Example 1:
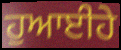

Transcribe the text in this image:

ਹੁਆਈਹੇ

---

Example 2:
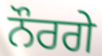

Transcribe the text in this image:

ਨੌਰਗੇ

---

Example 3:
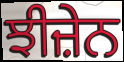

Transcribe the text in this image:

ਝੀਜ਼ੇਨ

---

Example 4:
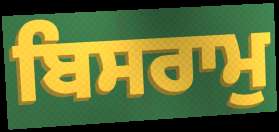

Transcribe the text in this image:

ਬਿਸਰਾਮੁ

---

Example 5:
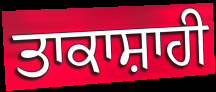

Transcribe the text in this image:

ਤਾਕਾਸ਼ਾਹੀ